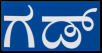
ಗಡ್